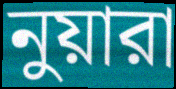
নুয়ারা